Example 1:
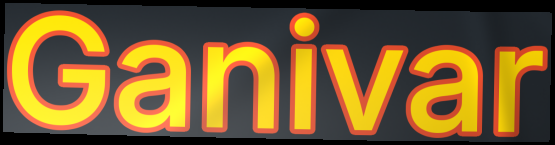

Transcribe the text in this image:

Ganivar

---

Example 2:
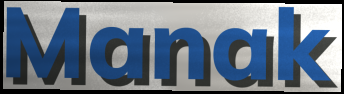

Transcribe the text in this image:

Manak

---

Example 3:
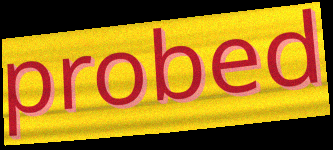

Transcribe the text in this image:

probed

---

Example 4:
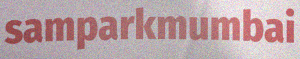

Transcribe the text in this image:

samparkmumbai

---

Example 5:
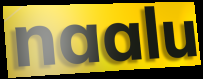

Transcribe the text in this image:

naalu